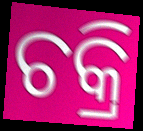
ଚକ୍ରି